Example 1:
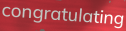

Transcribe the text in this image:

congratulating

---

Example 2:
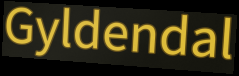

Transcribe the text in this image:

Gyldendal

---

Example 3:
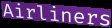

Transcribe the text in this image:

Airliners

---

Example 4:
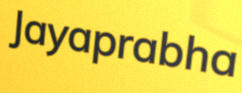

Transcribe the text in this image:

Jayaprabha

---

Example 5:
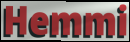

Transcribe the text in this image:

Hemmi